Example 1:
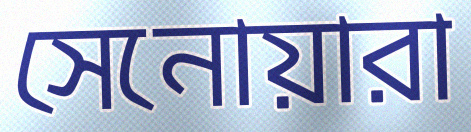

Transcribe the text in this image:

সেনোয়ারা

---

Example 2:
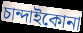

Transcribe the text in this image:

চান্দাইকোনা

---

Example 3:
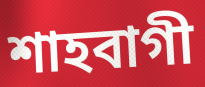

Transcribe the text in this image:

শাহবাগী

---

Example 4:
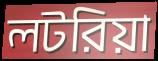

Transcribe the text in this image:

লটরিয়া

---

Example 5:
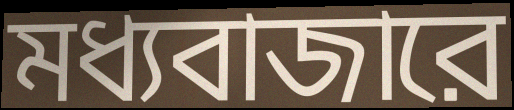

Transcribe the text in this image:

মধ্যবাজারে